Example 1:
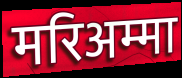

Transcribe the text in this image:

मरिअम्मा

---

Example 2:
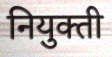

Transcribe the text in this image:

नियुक्ती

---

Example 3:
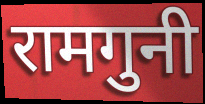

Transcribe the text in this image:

रामगुनी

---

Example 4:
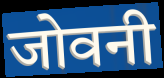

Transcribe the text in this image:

जोवनी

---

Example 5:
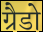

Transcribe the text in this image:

ग्रैडो